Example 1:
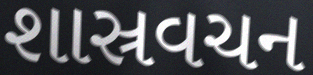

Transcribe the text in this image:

શાસ્રવચન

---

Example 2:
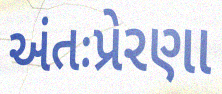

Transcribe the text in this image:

અંતઃપ્રેરણા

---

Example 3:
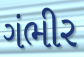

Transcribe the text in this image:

ગંભીર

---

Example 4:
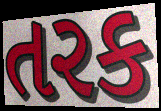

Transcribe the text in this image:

તરક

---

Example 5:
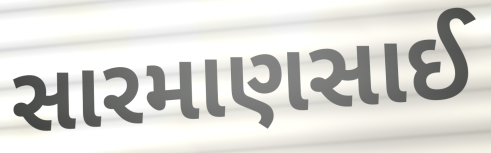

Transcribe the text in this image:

સારમાણસાઈ